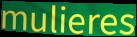
mulieres